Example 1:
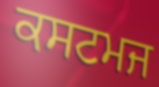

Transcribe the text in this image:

ਕਸਟਮਜ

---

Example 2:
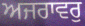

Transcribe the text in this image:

ਅਜਰਾਵਰੁ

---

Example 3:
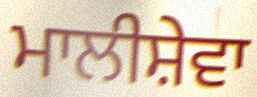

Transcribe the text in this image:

ਮਾਲੀਸ਼ੇਵਾ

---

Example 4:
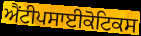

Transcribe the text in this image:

ਐਂਟੀਪਸਾਈਕੋਟਿਕਸ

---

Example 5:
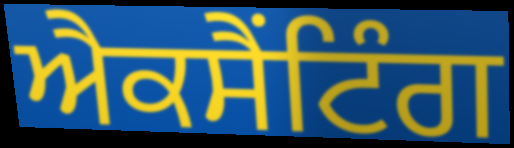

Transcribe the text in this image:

ਐਕਸੈਂਟਿੰਗ